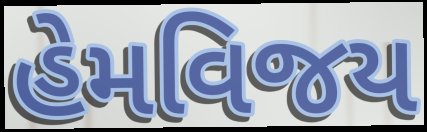
હેમવિજય